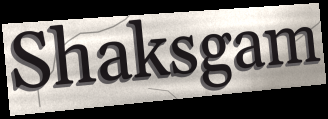
Shaksgam